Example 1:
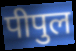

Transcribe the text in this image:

पीपुल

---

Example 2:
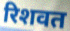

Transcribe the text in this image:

रिशवत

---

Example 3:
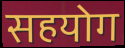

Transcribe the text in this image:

सहयोग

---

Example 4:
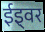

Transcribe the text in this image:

ईइ्वर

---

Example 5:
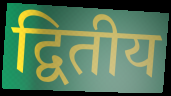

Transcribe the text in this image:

द्वितीय